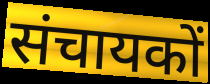
संचायकों